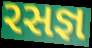
રસજ્ઞ